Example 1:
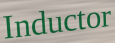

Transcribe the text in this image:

Inductor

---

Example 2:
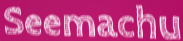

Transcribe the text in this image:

Seemachu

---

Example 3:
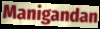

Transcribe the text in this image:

Manigandan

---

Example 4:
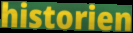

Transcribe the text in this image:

historien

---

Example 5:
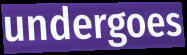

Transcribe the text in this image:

undergoes